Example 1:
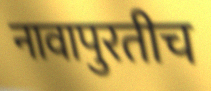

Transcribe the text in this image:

नावापुरतीच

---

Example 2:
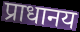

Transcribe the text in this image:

प्राधानय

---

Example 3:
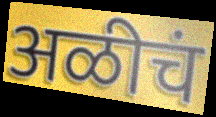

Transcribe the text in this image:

अळीचं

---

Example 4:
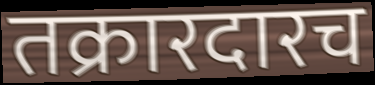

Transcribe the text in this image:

तक्रारदारच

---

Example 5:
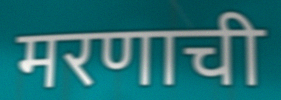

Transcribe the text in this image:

मरणाची